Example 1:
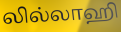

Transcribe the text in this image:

லில்லாஹி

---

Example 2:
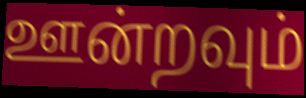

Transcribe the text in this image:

ஊன்றவும்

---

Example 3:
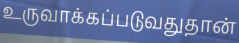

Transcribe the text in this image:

உருவாக்கப்படுவதுதான்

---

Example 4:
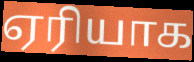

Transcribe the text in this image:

ஏரியாக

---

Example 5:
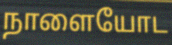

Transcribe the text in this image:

நாளையோட